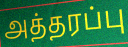
அத்தரப்பு